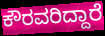
ಕೌರವರಿದ್ದಾರೆ